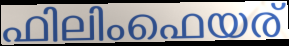
ഫിലിംഫെയര്